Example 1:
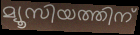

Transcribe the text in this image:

മ്യൂസിയത്തിന്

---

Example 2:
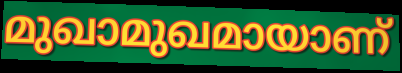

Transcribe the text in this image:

മുഖാമുഖമായാണ്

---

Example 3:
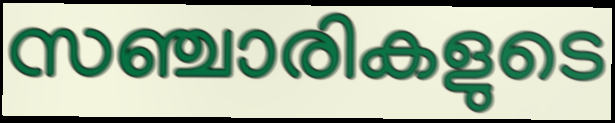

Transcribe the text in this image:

സഞ്ചാരികളുടെ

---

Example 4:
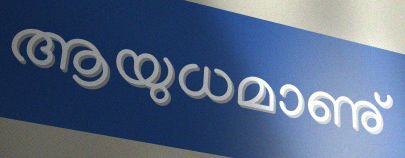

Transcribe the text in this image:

ആയുധമാണു്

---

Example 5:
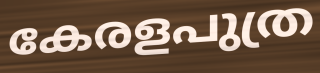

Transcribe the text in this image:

കേരളപുത്ര